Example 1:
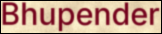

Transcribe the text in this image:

Bhupender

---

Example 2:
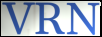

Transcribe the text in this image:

VRN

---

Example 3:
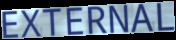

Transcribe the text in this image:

EXTERNAL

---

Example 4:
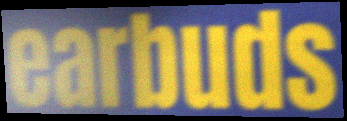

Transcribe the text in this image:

earbuds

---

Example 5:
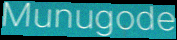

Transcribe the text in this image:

Munugode